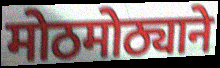
मोठमोठ्याने